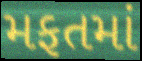
મફતમાં